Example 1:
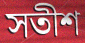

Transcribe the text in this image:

সতীশ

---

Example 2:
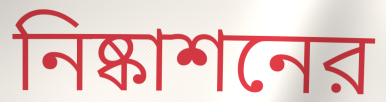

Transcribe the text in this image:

নিষ্কাশনের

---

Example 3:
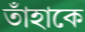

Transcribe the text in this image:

তাঁহাকে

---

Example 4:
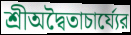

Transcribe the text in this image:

শ্রীঅদ্বৈতাচার্য্যের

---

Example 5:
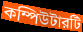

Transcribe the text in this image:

কম্পিউটারটি